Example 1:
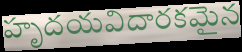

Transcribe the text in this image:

హృదయవిదారకమైన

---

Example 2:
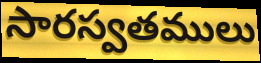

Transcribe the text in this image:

సారస్వతములు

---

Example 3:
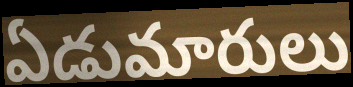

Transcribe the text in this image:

ఏడుమారులు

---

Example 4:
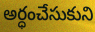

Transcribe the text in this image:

అర్ధంచేసుకుని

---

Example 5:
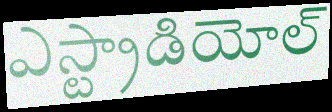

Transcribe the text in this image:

ఎస్ట్రాడియోల్